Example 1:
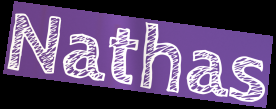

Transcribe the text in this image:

Nathas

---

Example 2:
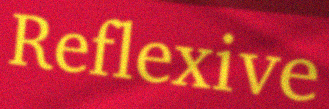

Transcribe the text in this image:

Reflexive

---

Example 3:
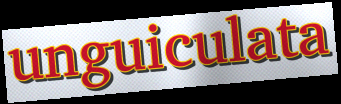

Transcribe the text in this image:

unguiculata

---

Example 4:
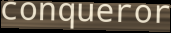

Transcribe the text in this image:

conqueror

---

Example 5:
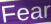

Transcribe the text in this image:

Fear